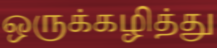
ஒருக்கழித்து